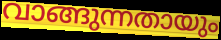
വാങ്ങുന്നതായും